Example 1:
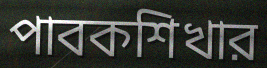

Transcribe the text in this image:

পাবকশিখার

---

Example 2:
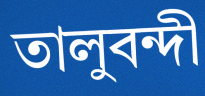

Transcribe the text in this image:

তালুবন্দী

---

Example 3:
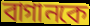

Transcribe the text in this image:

বাগানকে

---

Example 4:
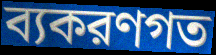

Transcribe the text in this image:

ব্যকরণগত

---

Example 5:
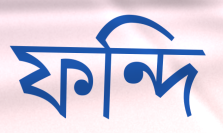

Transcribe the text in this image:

ফন্দি